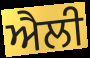
ਐਲੀ